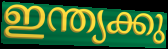
ഇന്ത്യക്കു